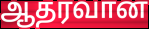
ஆதரவான